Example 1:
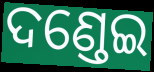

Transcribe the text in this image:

ଦଣ୍ଡେଇ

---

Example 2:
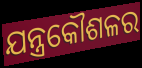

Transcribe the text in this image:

ଯନ୍ତ୍ରକୌଶଳର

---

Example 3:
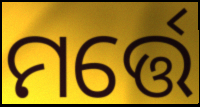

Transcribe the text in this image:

ମର୍ତ୍ତେ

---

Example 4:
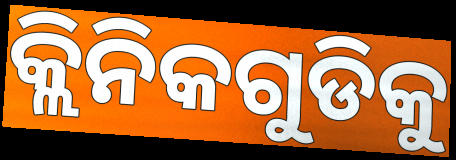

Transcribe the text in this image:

କ୍ଲିନିକଗୁଡିକୁ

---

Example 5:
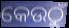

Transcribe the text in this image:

କେଉଠୁଁ